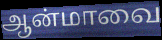
ஆன்மாவை